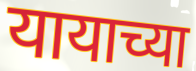
यायाच्या